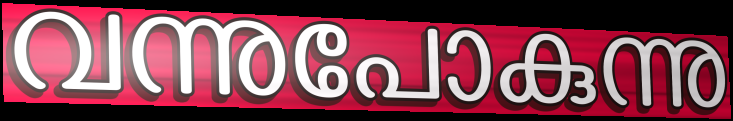
വന്നുപോകുന്നു